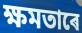
ক্ষমতাৰে